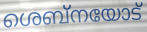
ശെബ്നയോട്